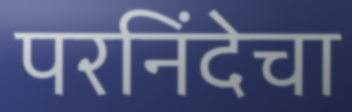
परनिंदेचा